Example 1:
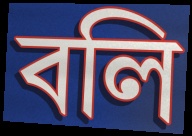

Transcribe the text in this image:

বলি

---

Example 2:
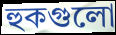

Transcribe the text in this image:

হুকগুলো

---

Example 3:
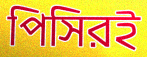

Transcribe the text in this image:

পিসিরই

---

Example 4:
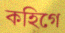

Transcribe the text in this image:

কহিগে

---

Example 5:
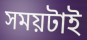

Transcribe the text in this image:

সময়টাই